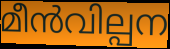
മീൻവില്പന